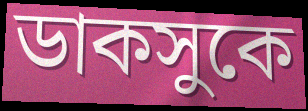
ডাকসুকে